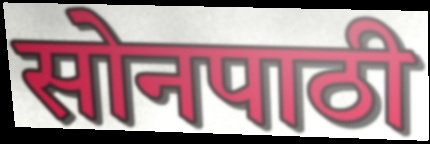
सोनपाठी